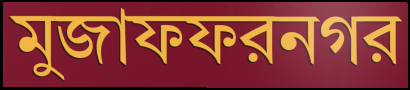
মুজাফফরনগর